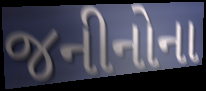
જનીનોના